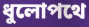
ধুলোপথে